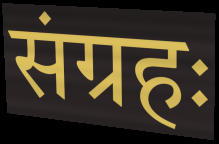
संग्रहः